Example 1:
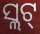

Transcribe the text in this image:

ସ୍ଲଟ୍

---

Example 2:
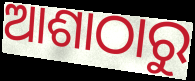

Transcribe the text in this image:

ଆଶାଠାରୁ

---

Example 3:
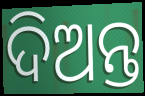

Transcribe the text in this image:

ଦିଅନ୍ତ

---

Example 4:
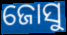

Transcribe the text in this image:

ଜୋସୁ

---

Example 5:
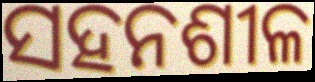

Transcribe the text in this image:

ସହନଶୀଳ